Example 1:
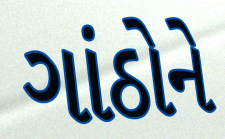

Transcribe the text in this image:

ગાંઠોને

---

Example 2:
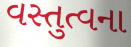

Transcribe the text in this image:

વસ્તુત્વના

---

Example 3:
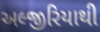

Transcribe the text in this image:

અલ્જીરિયાથી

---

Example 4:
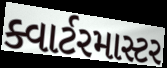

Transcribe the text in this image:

ક્વાર્ટરમાસ્ટર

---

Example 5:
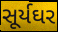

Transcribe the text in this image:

સૂર્યઘર